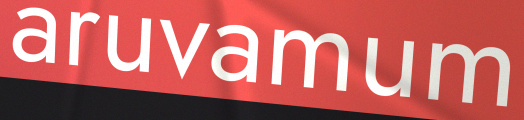
aruvamum